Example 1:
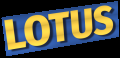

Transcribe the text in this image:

LOTUS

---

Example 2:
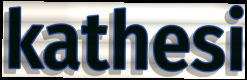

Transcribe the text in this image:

kathesi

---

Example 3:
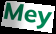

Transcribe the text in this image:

Mey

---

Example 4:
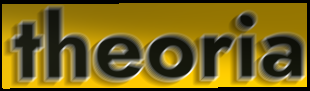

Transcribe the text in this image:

theoria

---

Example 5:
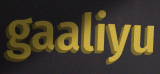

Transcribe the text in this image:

gaaliyu